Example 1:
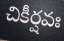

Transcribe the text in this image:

చికీర్షవః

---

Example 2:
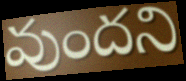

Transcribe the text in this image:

వుందని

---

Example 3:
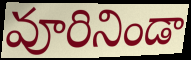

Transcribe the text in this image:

వూరినిండా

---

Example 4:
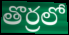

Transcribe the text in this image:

తొర్రలో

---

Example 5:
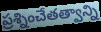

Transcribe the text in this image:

ప్రశ్నించేతత్వాన్ని